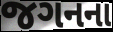
જગનના